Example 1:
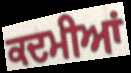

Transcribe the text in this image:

ਕਦਮੀਆਂ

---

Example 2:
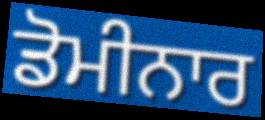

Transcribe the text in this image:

ਡੋਮੀਨਾਰ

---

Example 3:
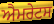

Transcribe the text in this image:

ਐਮਰੇਟਸ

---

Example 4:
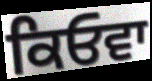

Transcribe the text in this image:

ਕਿਓਵਾ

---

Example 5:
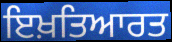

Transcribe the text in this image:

ਇਖ਼ਤਿਆਰਤ